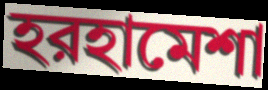
হরহামেশা